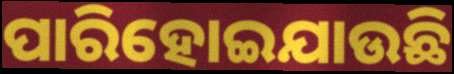
ପାରିହୋଇଯାଉଛି